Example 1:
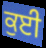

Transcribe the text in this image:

ਕੁਈ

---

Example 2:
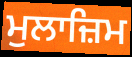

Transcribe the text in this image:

ਮੁਲਾਜ਼ਿਮ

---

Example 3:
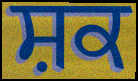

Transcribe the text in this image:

ਸ਼ਕ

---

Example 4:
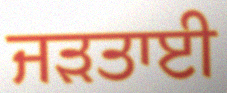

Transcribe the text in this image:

ਜੜਤਾਈ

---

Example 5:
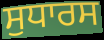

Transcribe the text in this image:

ਸੁਧਾਰਸ